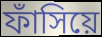
ফাঁসিয়ে